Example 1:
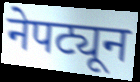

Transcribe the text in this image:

नेपट्यून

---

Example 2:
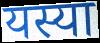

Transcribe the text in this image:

यस्या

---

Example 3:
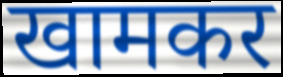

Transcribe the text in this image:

खामकर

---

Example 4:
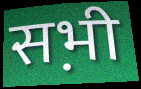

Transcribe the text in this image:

सभ़ी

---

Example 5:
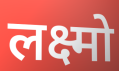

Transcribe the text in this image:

लक्ष्मो